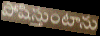
పోషిస్తుంటాను